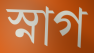
স্নাগ